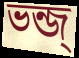
ভন্জ্